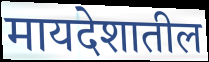
मायदेशातील